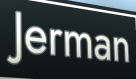
Jerman